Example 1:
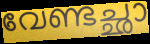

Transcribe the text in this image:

വേണ്ടച്ഛാ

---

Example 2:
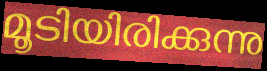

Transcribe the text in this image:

മൂടിയിരിക്കുന്നു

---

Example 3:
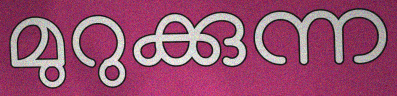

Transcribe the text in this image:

മുറുക്കുന്ന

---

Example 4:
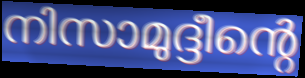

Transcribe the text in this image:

നിസാമുദ്ദീന്റെ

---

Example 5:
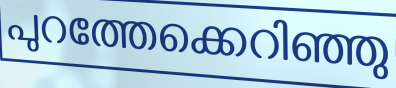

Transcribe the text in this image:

പുറത്തേക്കെറിഞ്ഞു